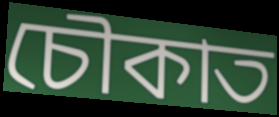
চৌকাত